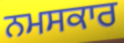
ਨਮਸਕਾਰ